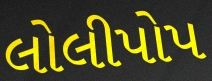
લોલીપોપ